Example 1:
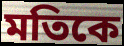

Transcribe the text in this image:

মতিকে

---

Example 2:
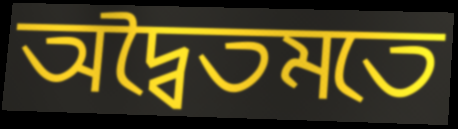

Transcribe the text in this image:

অদ্বৈতমতে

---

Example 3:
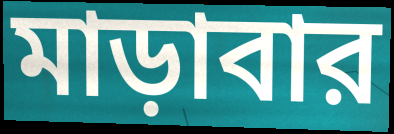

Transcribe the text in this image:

মাড়াবার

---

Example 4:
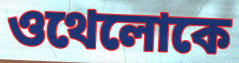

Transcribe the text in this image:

ওথেলোকে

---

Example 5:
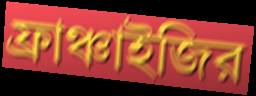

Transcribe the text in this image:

ফ্রাঞ্চাইজির